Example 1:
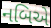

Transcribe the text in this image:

નબિએ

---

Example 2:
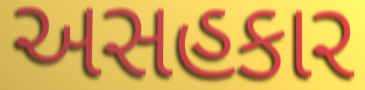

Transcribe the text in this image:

અસહકાર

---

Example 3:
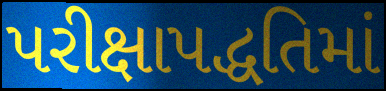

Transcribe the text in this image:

પરીક્ષાપદ્ધતિમાં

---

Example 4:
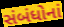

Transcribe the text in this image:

સંબંધોનાં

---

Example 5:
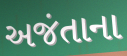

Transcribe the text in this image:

અજંતાના